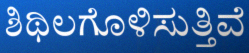
ಶಿಥಿಲಗೊಳಿಸುತ್ತಿವೆ